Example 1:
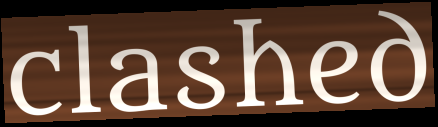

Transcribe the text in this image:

clashed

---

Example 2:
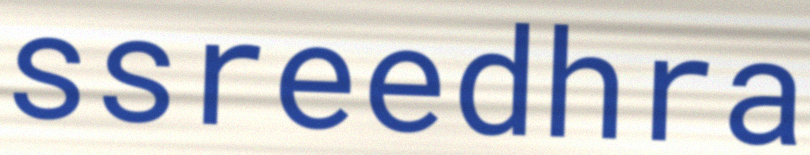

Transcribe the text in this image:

ssreedhra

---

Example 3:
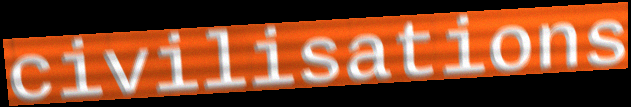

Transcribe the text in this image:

civilisations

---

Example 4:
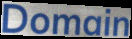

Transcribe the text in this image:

Domain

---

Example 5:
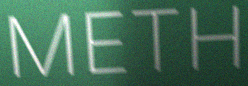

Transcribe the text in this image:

METH